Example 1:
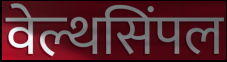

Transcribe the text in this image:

वेल्थसिंपल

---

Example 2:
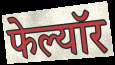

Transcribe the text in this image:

फेल्यॉर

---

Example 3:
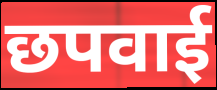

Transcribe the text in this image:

छपवाई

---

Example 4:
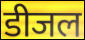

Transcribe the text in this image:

डीजल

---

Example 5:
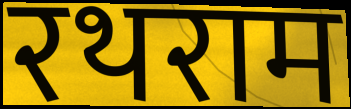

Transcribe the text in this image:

रथराम